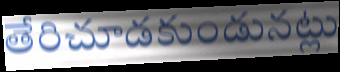
తేరిచూడకుండునట్లు